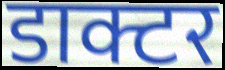
डाक्टर